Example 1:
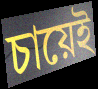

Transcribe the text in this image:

চায়েই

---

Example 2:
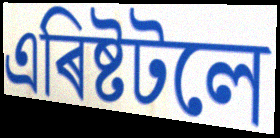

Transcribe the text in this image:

এৰিষ্টটলে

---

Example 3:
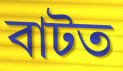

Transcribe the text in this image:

বাটত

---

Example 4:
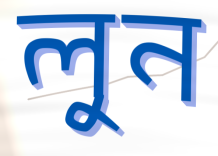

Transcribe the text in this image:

লুন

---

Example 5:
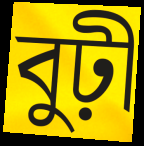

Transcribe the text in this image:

বুঢ়ী